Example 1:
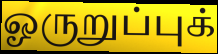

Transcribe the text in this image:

ஓருறுப்புக்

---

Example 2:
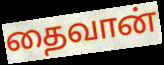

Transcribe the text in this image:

தைவான்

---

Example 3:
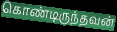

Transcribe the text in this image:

கொண்டிருந்தவன்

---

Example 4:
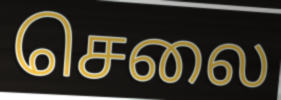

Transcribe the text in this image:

செலை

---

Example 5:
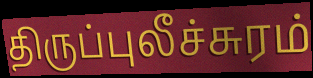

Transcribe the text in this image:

திருப்புலீச்சுரம்